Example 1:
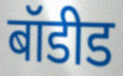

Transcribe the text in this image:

बॉडीड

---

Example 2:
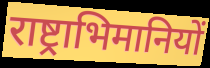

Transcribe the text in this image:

राष्ट्राभिमानियों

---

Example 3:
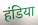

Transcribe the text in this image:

हंडिया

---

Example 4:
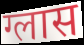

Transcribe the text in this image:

ग्लास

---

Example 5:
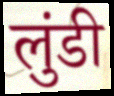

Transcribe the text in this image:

लुंडी